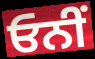
ਓਨੀਂ